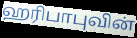
ஹரிபாபுவின்